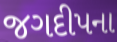
જગદીપના